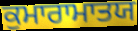
ਕੁਮਾਰਾਮਾਤਯ